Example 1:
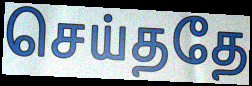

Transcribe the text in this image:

செய்ததே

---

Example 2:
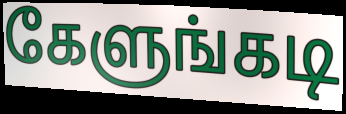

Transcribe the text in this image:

கேளுங்கடி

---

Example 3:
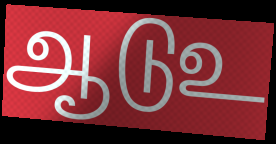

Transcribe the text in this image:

ஆடுஉ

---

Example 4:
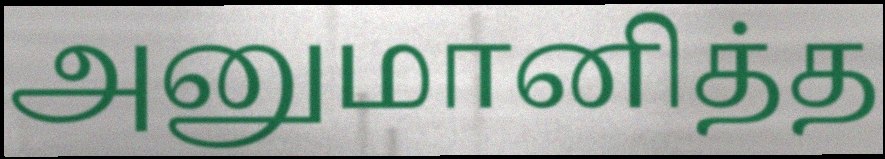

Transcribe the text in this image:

அனுமானித்த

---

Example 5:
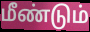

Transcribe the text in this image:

மீண்டும்